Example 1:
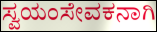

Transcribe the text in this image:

ಸ್ವಯಂಸೇವಕನಾಗಿ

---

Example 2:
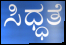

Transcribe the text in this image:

ಸಿಧ್ಧತೆ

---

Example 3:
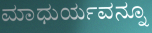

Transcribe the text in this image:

ಮಾಧುರ್ಯವನ್ನೂ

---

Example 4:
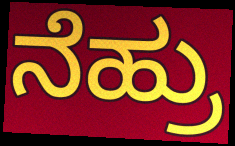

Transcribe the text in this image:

ನೆಹ್ರು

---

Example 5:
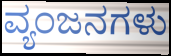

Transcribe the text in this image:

ವ್ಯಂಜನಗಳು